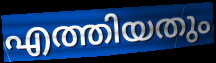
എത്തിയതും